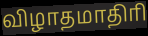
விழாதமாதிரி